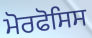
ਮੋਰਫੋਸਿਸ